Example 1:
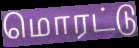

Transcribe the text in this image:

மொரட்டு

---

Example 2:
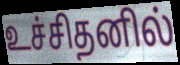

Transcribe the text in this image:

உச்சிதனில்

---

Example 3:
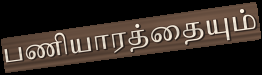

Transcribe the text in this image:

பணியாரத்தையும்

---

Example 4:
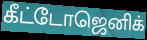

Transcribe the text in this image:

கீட்டோஜெனிக்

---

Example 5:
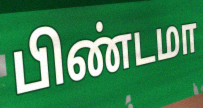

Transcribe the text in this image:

பிண்டமா